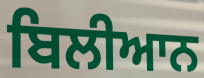
ਬਿਲੀਆਨ